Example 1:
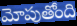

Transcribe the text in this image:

మోపుతోంది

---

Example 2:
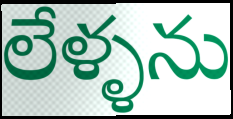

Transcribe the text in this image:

లేళ్ళను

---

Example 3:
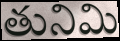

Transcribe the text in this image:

తునిమి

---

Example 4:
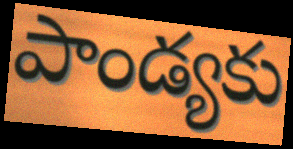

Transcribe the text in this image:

పాండ్యకు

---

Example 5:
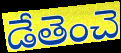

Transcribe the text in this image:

డేతెంచె